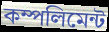
কম্পলিমেন্ট